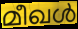
മീഖൾ